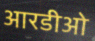
आरडीओ